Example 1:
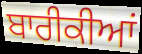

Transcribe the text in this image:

ਬਾਰੀਕੀਆਂ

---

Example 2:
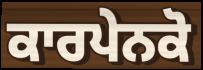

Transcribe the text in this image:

ਕਾਰਪੇਨਕੋ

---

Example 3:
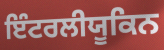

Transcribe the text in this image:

ਇੰਟਰਲੀਯੂਕਿਨ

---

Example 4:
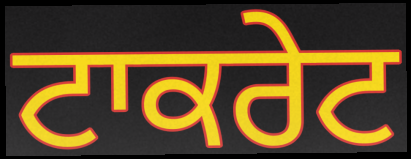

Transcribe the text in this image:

ਟਾਕਰੇਟ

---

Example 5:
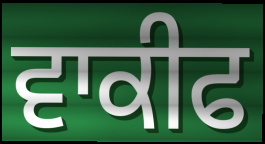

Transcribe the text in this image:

ਵਾਕੀਫ